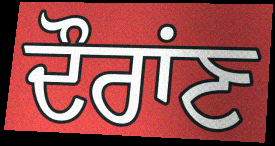
ਦੌਰਾਂਣ